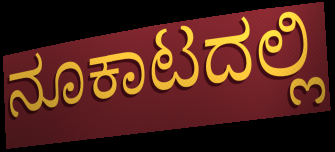
ನೂಕಾಟದಲ್ಲಿ